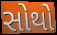
સોથો